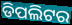
ଡିପଲିଟର